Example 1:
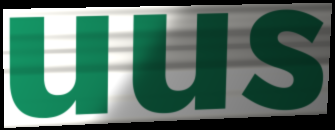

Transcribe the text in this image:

uus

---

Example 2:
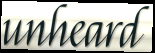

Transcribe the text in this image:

unheard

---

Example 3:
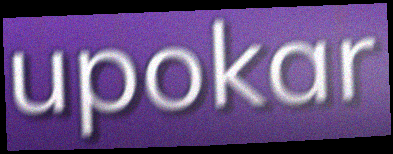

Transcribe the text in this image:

upokar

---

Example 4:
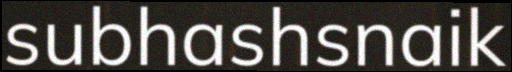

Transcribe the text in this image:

subhashsnaik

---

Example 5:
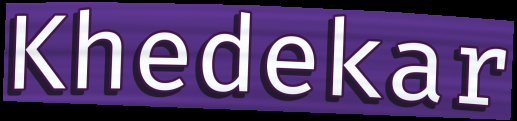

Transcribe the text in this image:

Khedekar